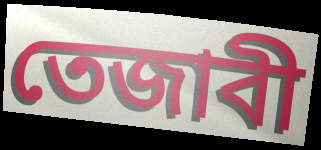
তেজাবী